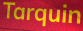
Tarquin